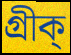
গ্রীক্